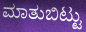
ಮಾತುಬಿಟ್ಟು